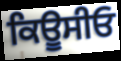
ਕਿਊਸੀਓ